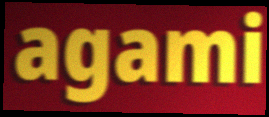
agami